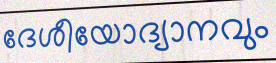
ദേശീയോദ്യാനവും